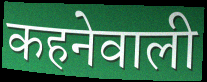
कहनेवाली